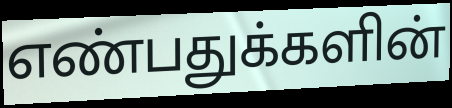
எண்பதுக்களின்